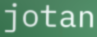
jotan